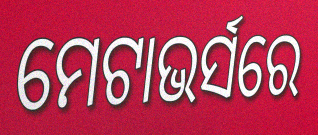
ମେଟାଭର୍ସରେ